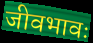
जीवभावः